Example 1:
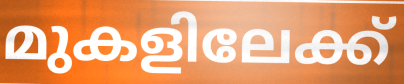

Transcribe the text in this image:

മുകളിലേക്ക്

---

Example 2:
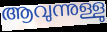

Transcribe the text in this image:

ആവുന്നുള്ളു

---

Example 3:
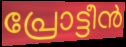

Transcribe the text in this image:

പ്രോട്ടീൻ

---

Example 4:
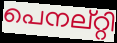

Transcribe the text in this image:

പെനല്റ്റി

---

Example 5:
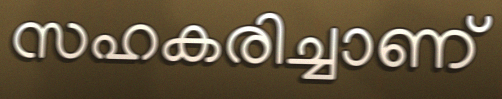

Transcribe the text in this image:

സഹകരിച്ചാണ്